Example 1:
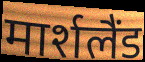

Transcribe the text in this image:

मार्शलैंड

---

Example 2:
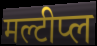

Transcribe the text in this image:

मल्टीप्ल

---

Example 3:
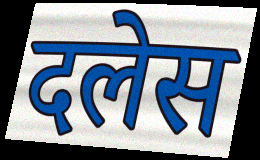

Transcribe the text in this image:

दलेस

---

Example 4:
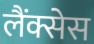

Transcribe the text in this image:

लैंक्सेस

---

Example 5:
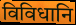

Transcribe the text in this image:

विविधानि